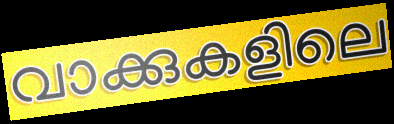
വാക്കുകളിലെ